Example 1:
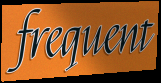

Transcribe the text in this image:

frequent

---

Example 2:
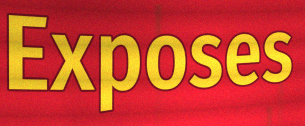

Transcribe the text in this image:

Exposes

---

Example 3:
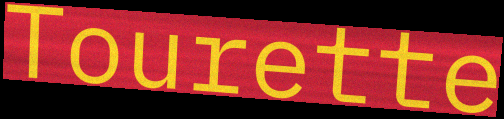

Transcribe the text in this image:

Tourette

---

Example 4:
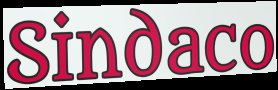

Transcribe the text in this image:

Sindaco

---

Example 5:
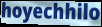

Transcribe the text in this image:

hoyechhilo